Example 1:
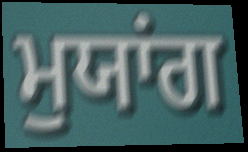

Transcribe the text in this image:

ਮੁਯਾਂਗ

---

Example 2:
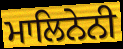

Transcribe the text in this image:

ਮਾਲਿਨੇਨੀ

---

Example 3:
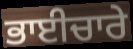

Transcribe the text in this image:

ਭਾਈਚਾਰੇ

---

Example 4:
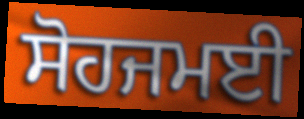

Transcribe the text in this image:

ਸੋਹਜਮਈ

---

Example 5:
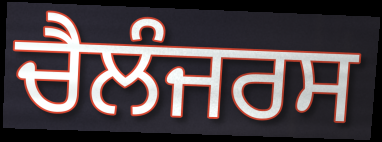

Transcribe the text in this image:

ਚੈਲੰਜਰਸ